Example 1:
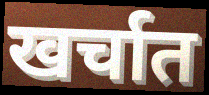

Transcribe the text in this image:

खर्चात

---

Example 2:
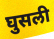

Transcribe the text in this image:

घुसली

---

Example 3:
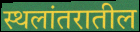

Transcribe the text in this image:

स्थलांतरातील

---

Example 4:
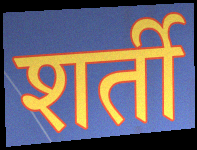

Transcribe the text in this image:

शर्ती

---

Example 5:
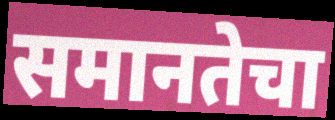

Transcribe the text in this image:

समानतेचा